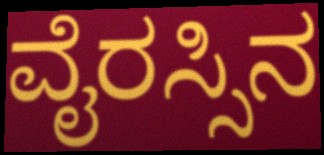
ವೈರಸ್ಸಿನ